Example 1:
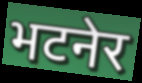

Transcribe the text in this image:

भटनेर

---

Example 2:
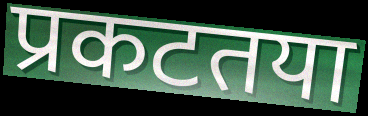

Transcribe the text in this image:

प्रकटतया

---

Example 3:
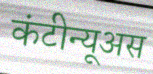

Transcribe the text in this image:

कंटीन्यूअस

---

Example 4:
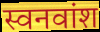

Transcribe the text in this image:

स्वनवांश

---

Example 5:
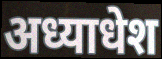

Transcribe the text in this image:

अध्याधेश